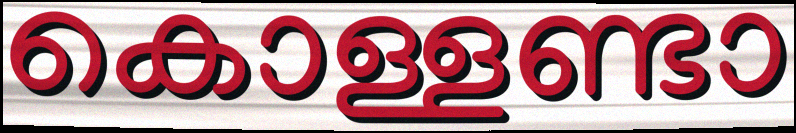
കൊള്ളണ്ടാ